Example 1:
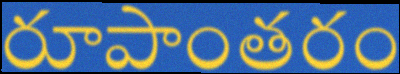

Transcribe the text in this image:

రూపాంతరం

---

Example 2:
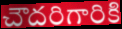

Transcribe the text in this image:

చౌదరిగారికి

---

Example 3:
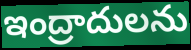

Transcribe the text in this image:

ఇంద్రాదులను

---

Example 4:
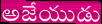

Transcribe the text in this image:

అజేయుడు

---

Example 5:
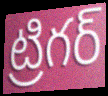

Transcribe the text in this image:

ట్రిగర్